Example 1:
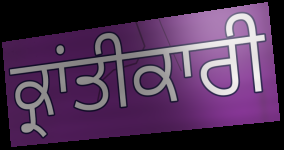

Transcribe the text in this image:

ਕ੍ਰਾਂਤੀਕਾਰੀ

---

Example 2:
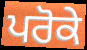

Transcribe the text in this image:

ਪਰੋਕੇ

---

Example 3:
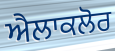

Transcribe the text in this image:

ਐਲਾਕਲੋਰ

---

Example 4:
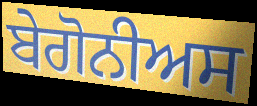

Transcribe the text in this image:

ਬੇਗੋਨੀਅਸ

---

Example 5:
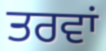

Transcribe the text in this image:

ਤਰਵਾਂ